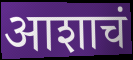
आशाचं